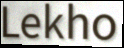
Lekho